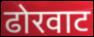
ढोरवाट